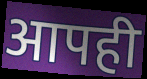
आपही